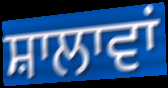
ਸ਼ਾਲਾਵਾਂ